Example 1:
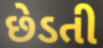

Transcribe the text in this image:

છેડતી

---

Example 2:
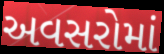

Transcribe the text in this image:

અવસરોમાં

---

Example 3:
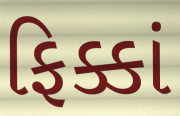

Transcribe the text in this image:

ફિક્કાં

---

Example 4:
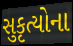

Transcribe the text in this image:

સુકૃત્યોના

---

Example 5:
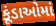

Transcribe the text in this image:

કૂંડાઓમાં